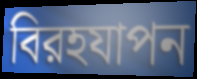
বিরহযাপন